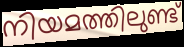
നിയമത്തിലുണ്ട്